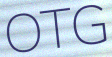
OTG